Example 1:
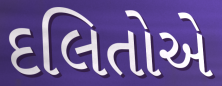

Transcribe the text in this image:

દલિતોએ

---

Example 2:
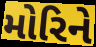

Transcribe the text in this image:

મોરિને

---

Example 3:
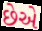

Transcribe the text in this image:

છેએ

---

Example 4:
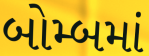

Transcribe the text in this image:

બોમ્બમાં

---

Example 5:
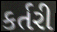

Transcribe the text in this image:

કર્તરી